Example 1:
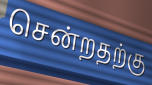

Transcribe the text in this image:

சென்றதற்கு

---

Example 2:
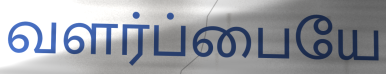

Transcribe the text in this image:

வளர்ப்பையே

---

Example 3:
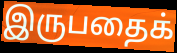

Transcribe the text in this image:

இருபதைக்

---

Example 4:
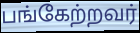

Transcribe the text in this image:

பங்கேற்றவர்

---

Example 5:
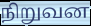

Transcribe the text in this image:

நிறுவன